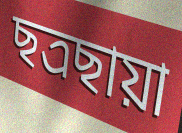
ছত্রছায়া